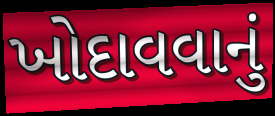
ખોદાવવાનું